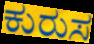
ಕುರುಸ